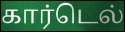
கார்டெல்